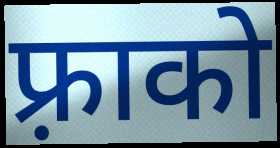
फ़्राको